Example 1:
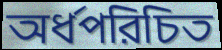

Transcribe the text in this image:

অর্ধপরিচিত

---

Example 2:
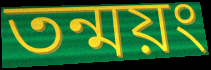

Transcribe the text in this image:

তন্ময়ং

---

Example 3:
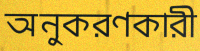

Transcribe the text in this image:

অনুকরণকারী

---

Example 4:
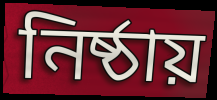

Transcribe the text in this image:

নিষ্ঠায়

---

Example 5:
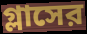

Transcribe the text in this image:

গ্লাসের